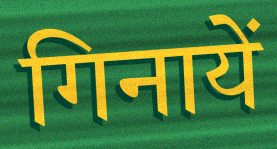
गिनायें